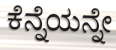
ಕೆನ್ನೆಯನ್ನೇ